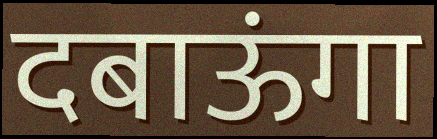
दबाऊंगा